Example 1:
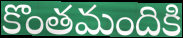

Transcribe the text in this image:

కొంతమందికి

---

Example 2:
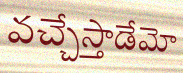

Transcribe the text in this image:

వచ్చేస్తాడేమో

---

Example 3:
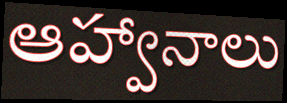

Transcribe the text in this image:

ఆహ్వానాలు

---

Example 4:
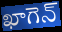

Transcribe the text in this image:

ఖాగెన్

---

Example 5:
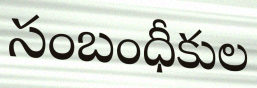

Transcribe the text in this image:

సంబంధీకుల